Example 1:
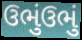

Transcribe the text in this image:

ઉભુંઉભું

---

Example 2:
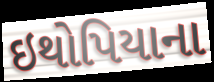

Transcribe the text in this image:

ઇથોપિયાના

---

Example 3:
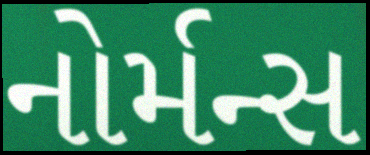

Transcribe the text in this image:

નોર્મન્સ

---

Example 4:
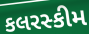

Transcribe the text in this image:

કલરસ્કીમ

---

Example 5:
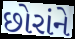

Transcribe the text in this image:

છોરાંને